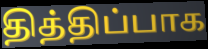
தித்திப்பாக